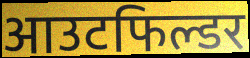
आउटफिल्डर